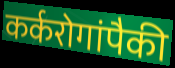
कर्करोगांपैकी